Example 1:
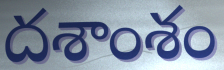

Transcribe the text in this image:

దశాంశం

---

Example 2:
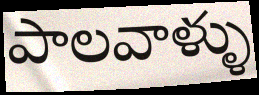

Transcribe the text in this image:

పాలవాళ్ళు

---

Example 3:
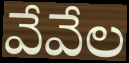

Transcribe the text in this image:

వేవేల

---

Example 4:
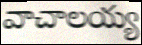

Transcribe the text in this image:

వాచాలయ్య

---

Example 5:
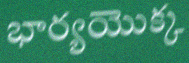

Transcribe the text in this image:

భార్యయొక్క